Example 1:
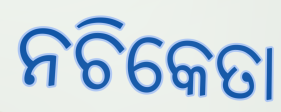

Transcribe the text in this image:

ନଚିକେତା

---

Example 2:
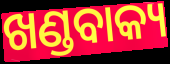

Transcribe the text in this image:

ଖଣ୍ଡବାକ୍ୟ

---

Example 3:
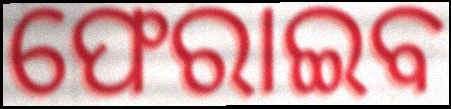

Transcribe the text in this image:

ଫେରାଇବ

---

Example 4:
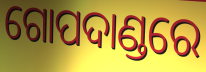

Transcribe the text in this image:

ଗୋପଦାଣ୍ଡରେ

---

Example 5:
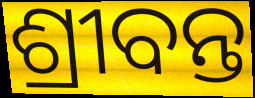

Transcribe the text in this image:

ଶ୍ରୀବନ୍ତ